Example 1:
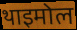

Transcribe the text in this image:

थाइमोल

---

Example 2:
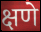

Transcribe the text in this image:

क्षणे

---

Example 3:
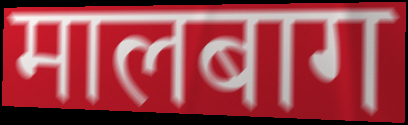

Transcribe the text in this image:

मालबाग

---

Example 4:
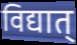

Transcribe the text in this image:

विद्यात्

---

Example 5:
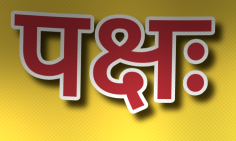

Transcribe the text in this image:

पक्षः